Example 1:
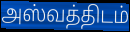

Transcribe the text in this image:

அஸ்வத்திடம்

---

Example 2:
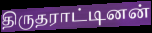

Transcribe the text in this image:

திருதராட்டினன்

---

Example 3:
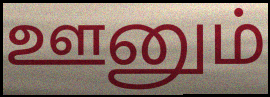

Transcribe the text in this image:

ஊனும்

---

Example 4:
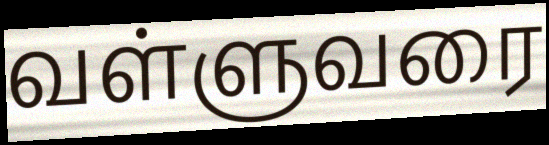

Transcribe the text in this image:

வள்ளுவரை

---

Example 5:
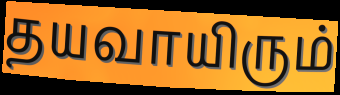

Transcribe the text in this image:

தயவாயிரும்